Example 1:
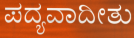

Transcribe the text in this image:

ಪದ್ಯವಾದೀತು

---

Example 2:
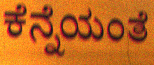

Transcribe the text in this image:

ಕೆನ್ನೆಯಂತೆ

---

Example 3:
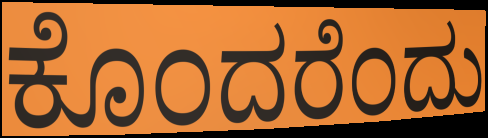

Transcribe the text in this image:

ಕೊಂದರೆಂದು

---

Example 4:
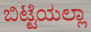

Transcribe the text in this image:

ಬಿಟ್ಟೆಯಲ್ಲಾ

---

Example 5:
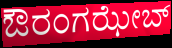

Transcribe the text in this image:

ಔರಂಗಝೇಬ್